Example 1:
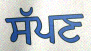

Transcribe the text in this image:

ਸੱਪਣ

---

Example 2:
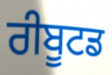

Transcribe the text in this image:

ਰੀਬੂਟਡ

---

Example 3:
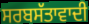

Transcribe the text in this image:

ਸਰਬਸੱਤਾਵਾਦੀ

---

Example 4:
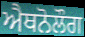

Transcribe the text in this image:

ਐਥਨੋਲੌਗ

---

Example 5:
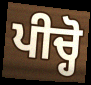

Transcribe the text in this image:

ਪੀਚ੍ਹੋ